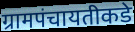
ग्रामपंचायतीकडे